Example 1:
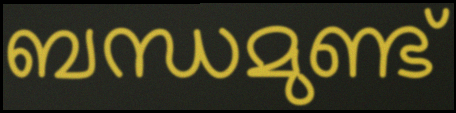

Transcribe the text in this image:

ബന്ധമുണ്ട്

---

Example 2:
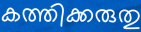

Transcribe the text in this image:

കത്തിക്കരുതു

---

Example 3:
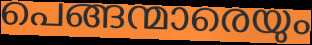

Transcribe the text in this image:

പെങ്ങന്മാരെയും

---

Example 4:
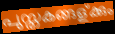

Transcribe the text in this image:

പുസ്തകങ്ങള്ക്കും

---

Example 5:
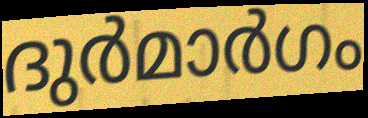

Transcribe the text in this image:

ദുർമാർഗം